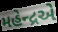
મહેન્દ્રએ